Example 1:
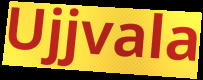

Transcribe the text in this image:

Ujjvala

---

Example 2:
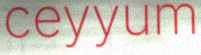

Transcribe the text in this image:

ceyyum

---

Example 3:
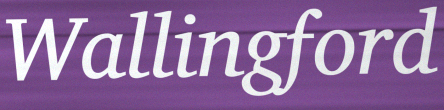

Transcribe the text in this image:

Wallingford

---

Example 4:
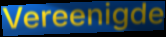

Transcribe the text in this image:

Vereenigde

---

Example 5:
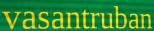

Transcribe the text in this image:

vasantruban